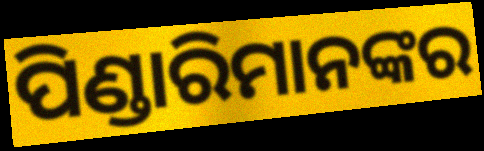
ପିଣ୍ଡାରିମାନଙ୍କର